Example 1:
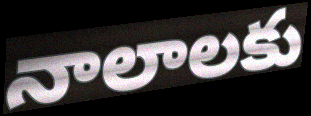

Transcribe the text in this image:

నాలాలకు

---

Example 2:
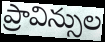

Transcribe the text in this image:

ప్రావిన్సుల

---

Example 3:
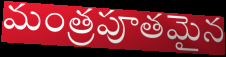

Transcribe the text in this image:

మంత్రపూతమైన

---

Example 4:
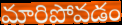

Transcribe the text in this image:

మారిపోవడం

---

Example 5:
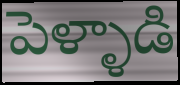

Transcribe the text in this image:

పెళ్ళాడి